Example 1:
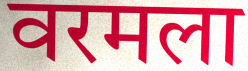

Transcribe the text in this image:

वरमला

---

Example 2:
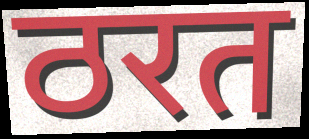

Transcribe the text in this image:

ठरत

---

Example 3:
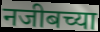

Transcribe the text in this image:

नजीबच्या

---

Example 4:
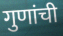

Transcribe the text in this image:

गुणांची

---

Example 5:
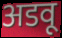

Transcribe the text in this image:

अडवू